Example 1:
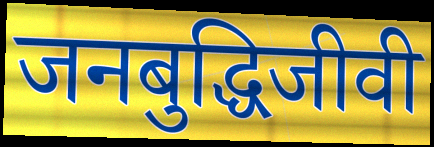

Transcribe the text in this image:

जनबुद्धिजीवी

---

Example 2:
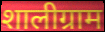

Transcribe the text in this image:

शालीग्राम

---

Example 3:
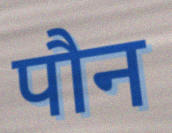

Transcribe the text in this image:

पौन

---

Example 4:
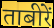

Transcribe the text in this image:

ताबीरें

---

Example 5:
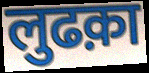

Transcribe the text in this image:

लुढक़ा